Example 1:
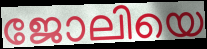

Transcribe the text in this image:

ജോലിയെ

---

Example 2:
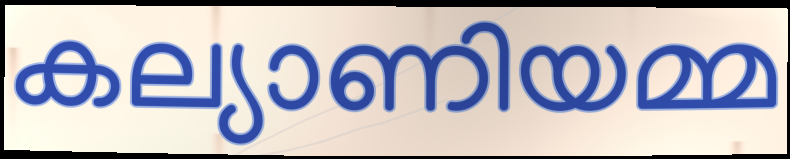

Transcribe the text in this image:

കല്യാണിയമ്മ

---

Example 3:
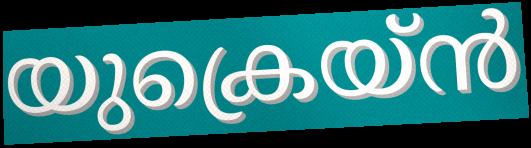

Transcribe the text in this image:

യുക്രെയ്ൻ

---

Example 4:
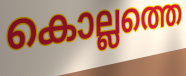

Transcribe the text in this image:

കൊല്ലത്തെ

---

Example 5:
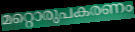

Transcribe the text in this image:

മറ്റൊരുപകരണം